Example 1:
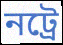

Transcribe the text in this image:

নট্ৰে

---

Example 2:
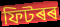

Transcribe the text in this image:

ফিটৰৰ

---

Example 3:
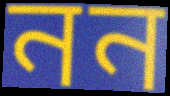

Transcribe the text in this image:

নন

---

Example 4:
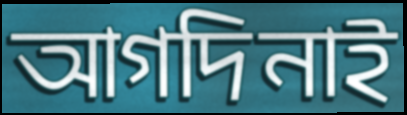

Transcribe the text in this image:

আগদিনাই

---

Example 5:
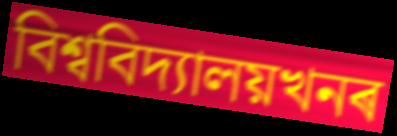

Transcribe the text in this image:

বিশ্ববিদ্যালয়খনৰ